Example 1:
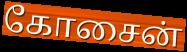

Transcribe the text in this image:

கோசைன்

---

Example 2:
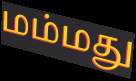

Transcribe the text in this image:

மம்மது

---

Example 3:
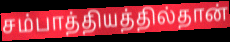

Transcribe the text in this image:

சம்பாத்தியத்தில்தான்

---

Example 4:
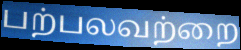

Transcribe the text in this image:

பற்பலவற்றை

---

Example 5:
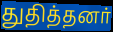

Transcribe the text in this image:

துதித்தனர்